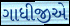
ગાધીજીએ